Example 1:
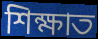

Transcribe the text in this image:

শিক্ষাত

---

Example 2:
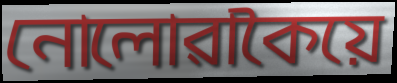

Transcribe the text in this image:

নোলোৱাকৈয়ে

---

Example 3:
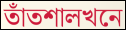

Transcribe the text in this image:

তাঁতশালখনে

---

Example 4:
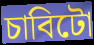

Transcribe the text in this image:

চাবিটো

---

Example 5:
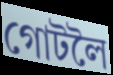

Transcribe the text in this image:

গোটলৈ